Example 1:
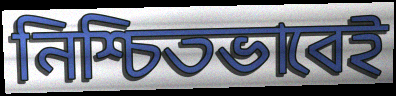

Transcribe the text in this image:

নিশ্চিতভাবেই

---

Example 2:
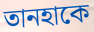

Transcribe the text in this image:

তানহাকে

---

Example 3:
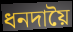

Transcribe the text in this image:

ধনদায়ৈ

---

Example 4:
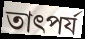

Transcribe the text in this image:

তাৎপর্য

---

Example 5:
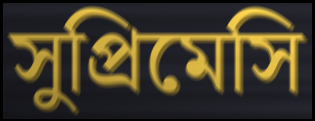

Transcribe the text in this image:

সুপ্রিমেসি